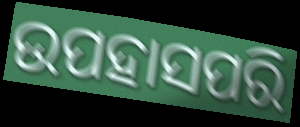
ଉପହାସପରି